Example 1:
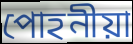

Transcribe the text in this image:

পোহনীয়া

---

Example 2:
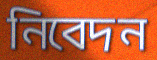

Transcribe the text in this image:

নিবেদন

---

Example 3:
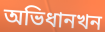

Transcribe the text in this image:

অভিধানখন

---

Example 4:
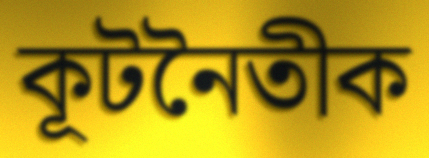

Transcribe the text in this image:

কূটনৈতীক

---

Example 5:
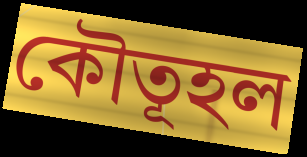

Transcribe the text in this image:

কৌতূহল